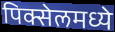
पिक्सेलमध्ये